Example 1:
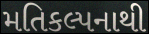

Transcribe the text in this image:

મતિકલ્પનાથી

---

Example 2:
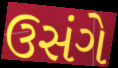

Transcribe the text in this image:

ઉસંગે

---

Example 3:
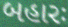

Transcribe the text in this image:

બહારઃ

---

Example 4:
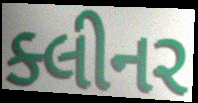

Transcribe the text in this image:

ક્લીનર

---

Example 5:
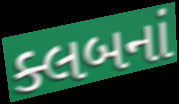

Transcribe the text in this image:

ક્લબનાં